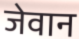
जेवान